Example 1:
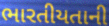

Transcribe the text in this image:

ભારતીયતાની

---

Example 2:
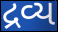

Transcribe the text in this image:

દ્રવ્ય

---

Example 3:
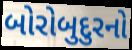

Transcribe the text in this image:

બોરોબુદુરનો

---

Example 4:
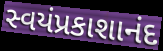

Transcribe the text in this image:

સ્વયંપ્રકાશાનંદ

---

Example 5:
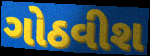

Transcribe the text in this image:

ગોઠવીશ